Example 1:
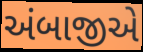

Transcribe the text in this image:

અંબાજીએ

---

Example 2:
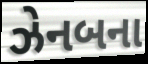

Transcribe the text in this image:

ઝેનબના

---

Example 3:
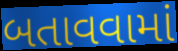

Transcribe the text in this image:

બતાવવામાં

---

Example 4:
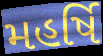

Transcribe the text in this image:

મહર્ષિ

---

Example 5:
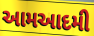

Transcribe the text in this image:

આમઆદમી